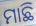
ମାଛି